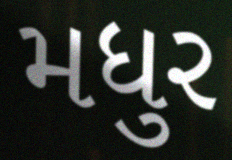
મધુર